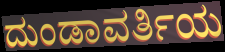
ದುಂಡಾವರ್ತಿಯ